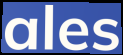
ales